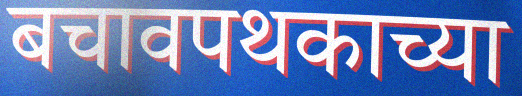
बचावपथकाच्या